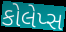
કોલેપ્સ